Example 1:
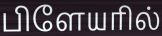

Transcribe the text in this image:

பிளேயரில்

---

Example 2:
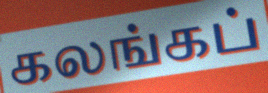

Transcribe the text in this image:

கலங்கப்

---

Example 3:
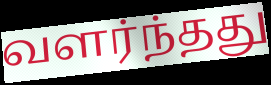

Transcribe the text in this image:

வளர்ந்தது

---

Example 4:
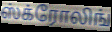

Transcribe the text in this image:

ஸ்க்ரோலிங்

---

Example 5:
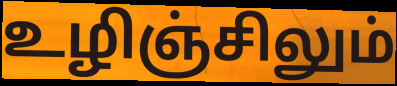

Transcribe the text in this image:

உழிஞ்சிலும்